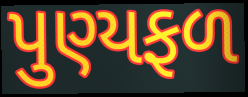
પુણ્યફળ